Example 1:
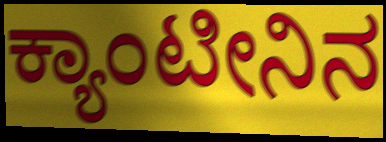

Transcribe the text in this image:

ಕ್ಯಾಂಟೀನಿನ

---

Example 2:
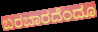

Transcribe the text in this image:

ಬರಬಾರದೆಂದೂ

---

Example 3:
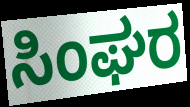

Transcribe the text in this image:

ಸಿಂಘರ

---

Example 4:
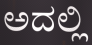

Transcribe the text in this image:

ಅದಲ್ಲಿ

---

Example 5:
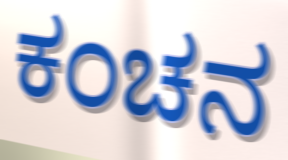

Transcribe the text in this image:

ಕಂಚನ